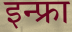
इन्फ्रा